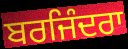
ਬਰਜਿੰਦਰਾ